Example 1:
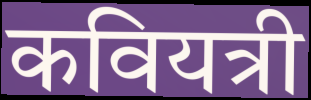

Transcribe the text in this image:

कवियत्री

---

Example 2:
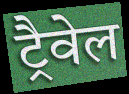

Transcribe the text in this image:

ट्रैवेल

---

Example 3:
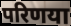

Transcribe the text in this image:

परिणया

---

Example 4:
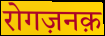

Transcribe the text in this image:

रोगज़नक़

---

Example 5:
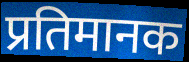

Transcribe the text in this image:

प्रतिमानक